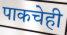
पाकचेही